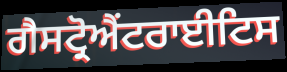
ਗੈਸਟ੍ਰੋਐਂਟਰਾਈਟਿਸ